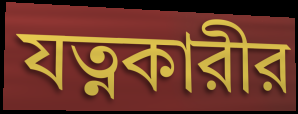
যত্নকারীর